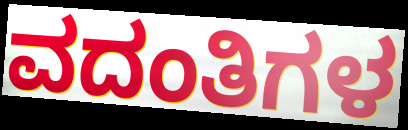
ವದಂತಿಗಳ